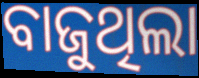
ବାଜୁଥିଲା